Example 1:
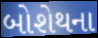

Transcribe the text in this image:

બોશેથના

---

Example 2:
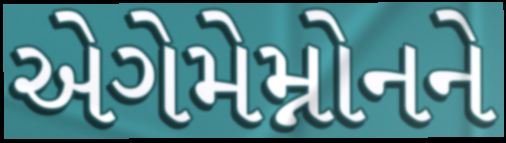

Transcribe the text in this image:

એગેમેમ્નોનને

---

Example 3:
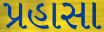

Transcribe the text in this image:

પ્રહાસા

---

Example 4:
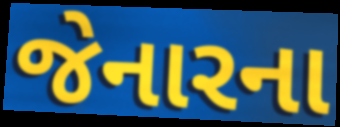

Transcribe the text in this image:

જેનારના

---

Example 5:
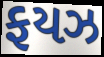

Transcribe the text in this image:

ફયઝ